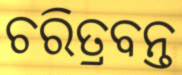
ଚରିତ୍ରବନ୍ତ